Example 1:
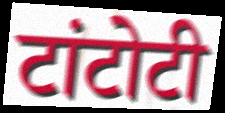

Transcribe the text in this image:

टांटोटी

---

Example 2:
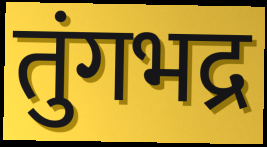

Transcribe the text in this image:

तुंगभद्र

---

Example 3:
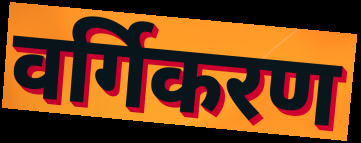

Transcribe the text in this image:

वर्गिकरण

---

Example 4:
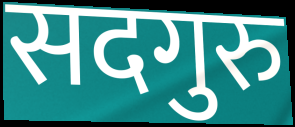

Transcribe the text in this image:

सदगुरु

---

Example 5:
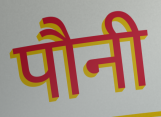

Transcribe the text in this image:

पौनी